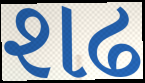
શઢ